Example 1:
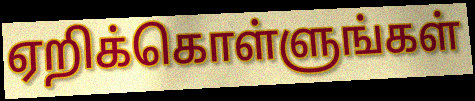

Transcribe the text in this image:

ஏறிக்கொள்ளுங்கள்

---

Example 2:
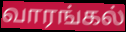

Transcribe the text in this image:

வாரங்கல்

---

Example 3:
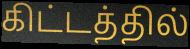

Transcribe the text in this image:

கிட்டத்தில்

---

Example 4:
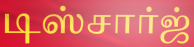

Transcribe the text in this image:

டிஸ்சார்ஜ்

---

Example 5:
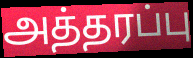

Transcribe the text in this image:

அத்தரப்பு